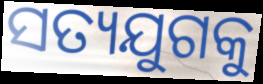
ସତ୍ୟଯୁଗକୁ